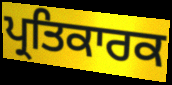
ਪ੍ਰਤਿਕਾਰਕ